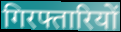
गिरफ्तारियों